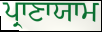
ਪ੍ਰਾਣਾਯਾਮ